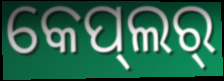
କେପ୍‌ଲର୍